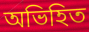
অভিহিত